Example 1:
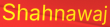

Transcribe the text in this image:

Shahnawaj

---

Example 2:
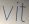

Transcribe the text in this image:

vit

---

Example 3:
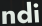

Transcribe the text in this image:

ndi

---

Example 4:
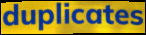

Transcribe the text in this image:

duplicates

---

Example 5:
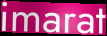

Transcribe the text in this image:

imarat